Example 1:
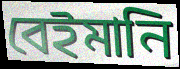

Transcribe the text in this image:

বেইমানি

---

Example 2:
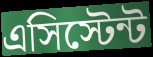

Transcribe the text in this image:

এসিস্টেন্ট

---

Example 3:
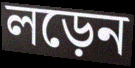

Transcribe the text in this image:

লড়েন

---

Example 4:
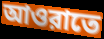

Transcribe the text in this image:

আওরাতে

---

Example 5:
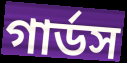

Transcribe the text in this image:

গার্ডস